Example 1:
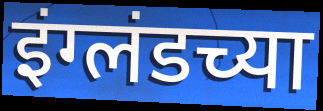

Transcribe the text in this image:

इंग्लंडच्या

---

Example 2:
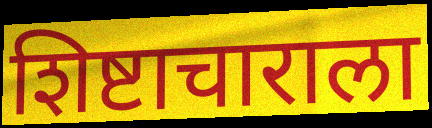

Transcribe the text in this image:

शिष्टाचाराला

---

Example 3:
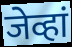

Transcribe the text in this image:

जेव्हां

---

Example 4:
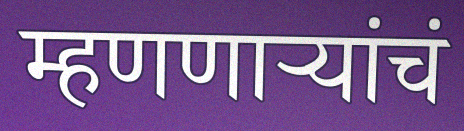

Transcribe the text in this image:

म्हणणाऱ्यांचं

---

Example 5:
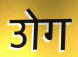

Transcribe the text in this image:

उोग